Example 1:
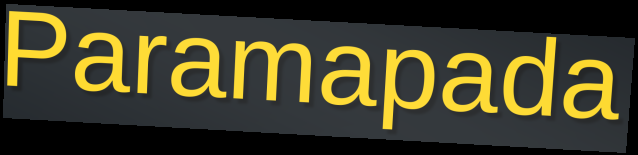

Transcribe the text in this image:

Paramapada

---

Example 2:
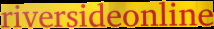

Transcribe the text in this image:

riversideonline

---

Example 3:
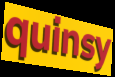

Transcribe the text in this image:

quinsy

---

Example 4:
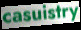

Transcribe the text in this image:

casuistry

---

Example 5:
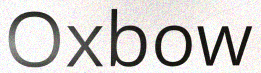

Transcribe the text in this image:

Oxbow